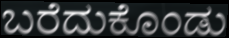
ಬರೆದುಕೊಂಡು